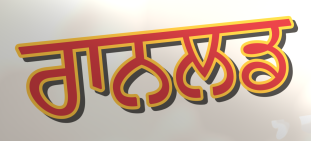
ਰਾਨਲਡ